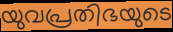
യുവപ്രതിഭയുടെ